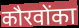
कौरवोंका